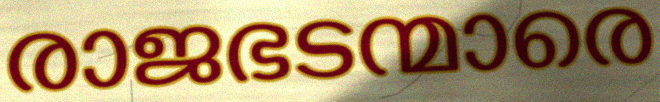
രാജഭടന്മാരെ